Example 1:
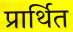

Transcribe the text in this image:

प्रार्थित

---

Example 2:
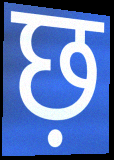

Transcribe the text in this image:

छ़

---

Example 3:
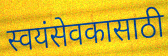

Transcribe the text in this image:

स्वयंसेवकासाठी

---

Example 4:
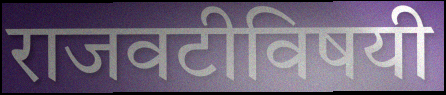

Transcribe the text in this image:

राजवटीविषयी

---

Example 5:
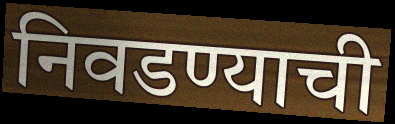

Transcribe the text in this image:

निवडण्याची